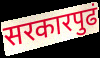
सरकारपुढं